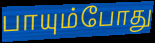
பாயும்போது